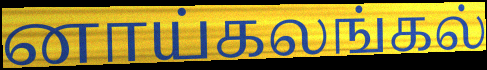
னாய்கலங்கல்